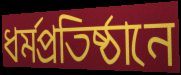
ধর্মপ্রতিষ্ঠানে